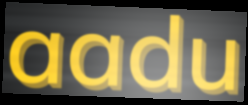
aadu